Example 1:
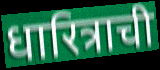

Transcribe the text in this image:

धारित्राची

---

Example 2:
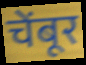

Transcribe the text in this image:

चेंबूर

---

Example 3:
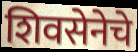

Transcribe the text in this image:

शिवसेनेचे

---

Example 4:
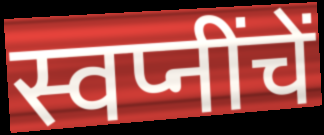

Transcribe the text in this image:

स्वप्नींचें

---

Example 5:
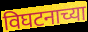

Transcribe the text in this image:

विघटनाच्या